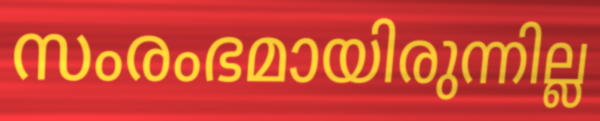
സംരംഭമായിരുന്നില്ല